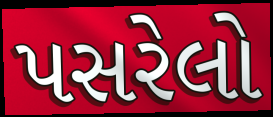
પસરેલો